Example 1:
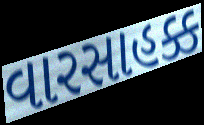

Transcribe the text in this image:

વારસાહક્ક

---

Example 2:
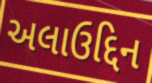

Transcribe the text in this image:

અલાઉદ્દિન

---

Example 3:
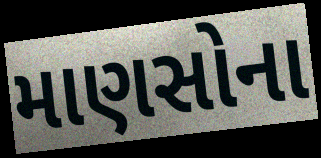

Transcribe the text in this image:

માણસોના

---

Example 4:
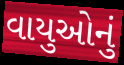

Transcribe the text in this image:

વાયુઓનું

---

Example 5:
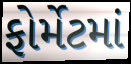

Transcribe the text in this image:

ફોર્મેટમાં